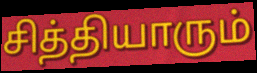
சித்தியாரும்